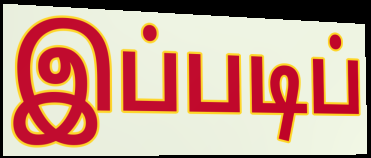
இப்படிப்